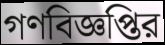
গণবিজ্ঞপ্তির